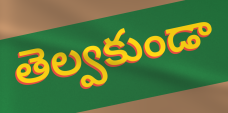
తెల్వకుండా